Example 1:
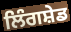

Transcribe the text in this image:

ਲਿੰਗਸ਼ੇਡ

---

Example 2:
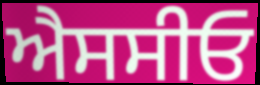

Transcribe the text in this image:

ਐਸਸੀਓ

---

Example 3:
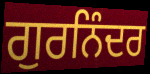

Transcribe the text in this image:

ਗੁਰਨਿੰਦਰ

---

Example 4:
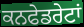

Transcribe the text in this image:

ਕਨਫੇਡਰੇਟਾਂ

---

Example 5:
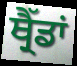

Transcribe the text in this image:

ਥ੍ਰੈੱਡਾਂ